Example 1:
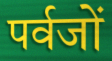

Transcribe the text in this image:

पर्वजों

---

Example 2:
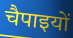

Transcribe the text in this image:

चैपाइयों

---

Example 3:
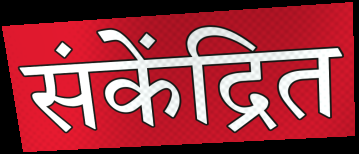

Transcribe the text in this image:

संकेंद्रित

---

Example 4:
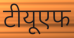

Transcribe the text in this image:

टीयूएफ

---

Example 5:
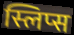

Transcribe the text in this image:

स्लिप्स